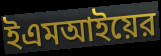
ইএমআইয়ের